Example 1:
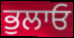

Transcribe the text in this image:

ਭੁਲਾਓ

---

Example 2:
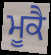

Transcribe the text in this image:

ਮੂਕੈ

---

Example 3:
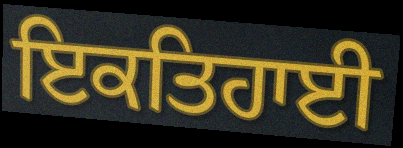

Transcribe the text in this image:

ਇਕਤਿਹਾਈ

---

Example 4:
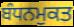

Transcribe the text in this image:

ਬੰਧਨਮੁਕਤ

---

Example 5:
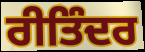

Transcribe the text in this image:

ਰੀਤਿੰਦਰ